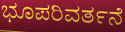
ಭೂಪರಿವರ್ತನೆ